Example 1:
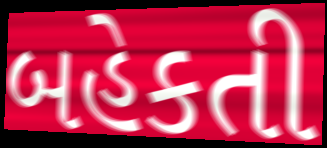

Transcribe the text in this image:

બહેકતી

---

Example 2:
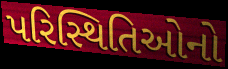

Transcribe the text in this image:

પરિસ્થિતિઓનો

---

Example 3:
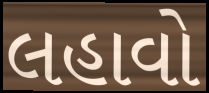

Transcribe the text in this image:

લહાવો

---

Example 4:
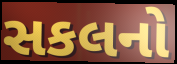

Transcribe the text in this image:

સકલનો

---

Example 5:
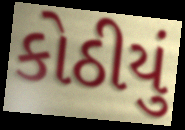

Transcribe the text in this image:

કોઠીયું